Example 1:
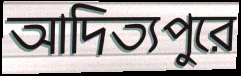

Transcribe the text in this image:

আদিত্যপুরে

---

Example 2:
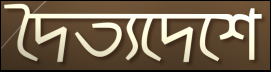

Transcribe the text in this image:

দৈত্যদেশে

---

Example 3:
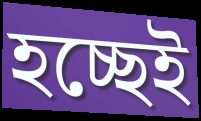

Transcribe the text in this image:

হচ্ছেই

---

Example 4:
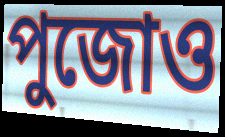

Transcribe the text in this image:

পুজোও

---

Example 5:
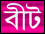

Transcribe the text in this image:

বীট